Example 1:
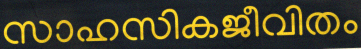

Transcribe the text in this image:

സാഹസികജീവിതം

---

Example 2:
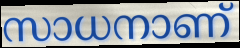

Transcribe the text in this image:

സാധനാണ്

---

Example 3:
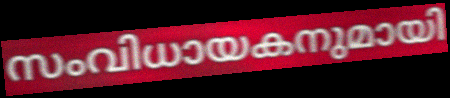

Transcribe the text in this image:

സംവിധായകനുമായി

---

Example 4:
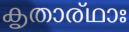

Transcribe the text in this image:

കൃതാര്ഥാഃ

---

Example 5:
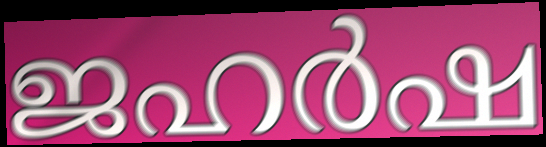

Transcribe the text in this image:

ജഹർഷ